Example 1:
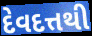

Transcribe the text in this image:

દેવદત્તથી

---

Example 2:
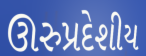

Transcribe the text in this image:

ઊરુપ્રદેશીય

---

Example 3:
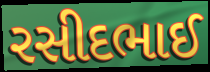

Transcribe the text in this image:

રસીદભાઈ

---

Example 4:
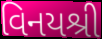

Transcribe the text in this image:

વિનયશ્રી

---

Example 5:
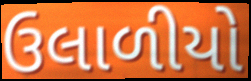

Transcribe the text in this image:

ઉલાળીયો